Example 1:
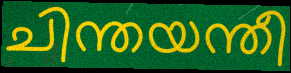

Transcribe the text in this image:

ചിന്തയന്തീ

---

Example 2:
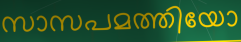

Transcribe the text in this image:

സാസപമത്തിയോ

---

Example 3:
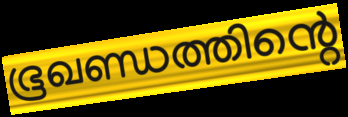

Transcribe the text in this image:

ഭൂഖണ്ഡത്തിന്റെ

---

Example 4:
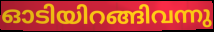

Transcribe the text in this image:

ഓടിയിറങ്ങിവന്നു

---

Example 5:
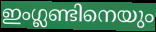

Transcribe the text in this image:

ഇംഗ്ലണ്ടിനെയും